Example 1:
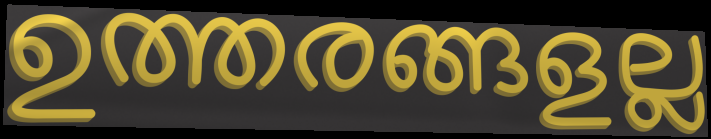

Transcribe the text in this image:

ഉത്തരങ്ങളല്ല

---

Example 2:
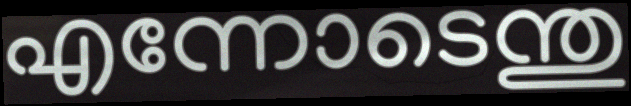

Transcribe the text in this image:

എന്നോടെന്തു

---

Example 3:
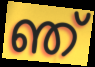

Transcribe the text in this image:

ഞ്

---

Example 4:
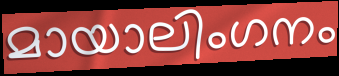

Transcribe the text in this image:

മായാലിംഗനം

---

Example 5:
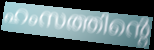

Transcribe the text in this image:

ഹംസത്തിന്റെ